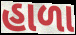
હાળા